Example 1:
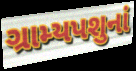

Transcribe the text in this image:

ગ્રામ્યપશુનાં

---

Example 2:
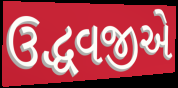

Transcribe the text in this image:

ઉદ્ધવજીએ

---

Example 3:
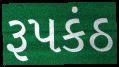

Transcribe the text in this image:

રૂપકંઠ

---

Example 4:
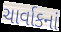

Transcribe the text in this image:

ચાર્વાકનાં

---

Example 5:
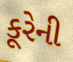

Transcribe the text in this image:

કૂરેની